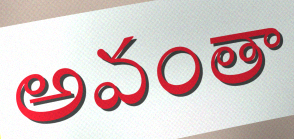
అవంతా